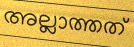
അല്ലാത്തത്